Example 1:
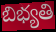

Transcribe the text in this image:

బిభ్యతి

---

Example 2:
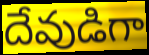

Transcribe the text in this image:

దేవుడిగా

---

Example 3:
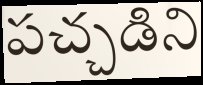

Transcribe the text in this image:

పచ్చడిని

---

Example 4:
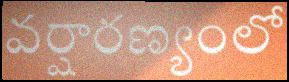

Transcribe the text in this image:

వర్షారణ్యంలో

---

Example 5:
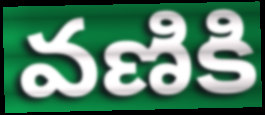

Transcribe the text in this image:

వణికి